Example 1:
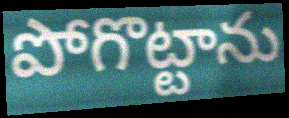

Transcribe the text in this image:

పోగొట్టాను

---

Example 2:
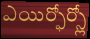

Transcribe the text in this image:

ఎయిర్ఫోర్స్లో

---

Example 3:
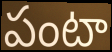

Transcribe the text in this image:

పంటా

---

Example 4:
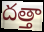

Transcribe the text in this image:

దత్తా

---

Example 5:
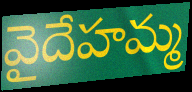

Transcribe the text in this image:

వైదేహమ్మ